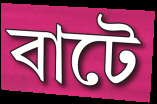
বাটে